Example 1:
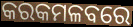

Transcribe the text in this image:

କରକମଳବରେ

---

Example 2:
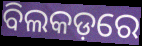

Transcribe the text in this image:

ବିଲକଡ଼ରେ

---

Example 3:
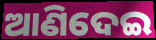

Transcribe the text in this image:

ଆଣିଦେଇ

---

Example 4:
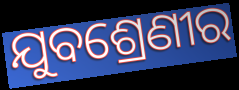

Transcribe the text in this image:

ଯୁବଶ୍ରେଣୀର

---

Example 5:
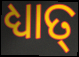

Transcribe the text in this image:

ଧ୍ୟାତ୍